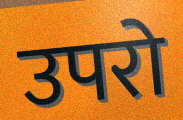
उपरो